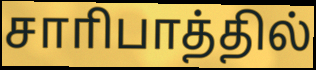
சாரிபாத்தில்